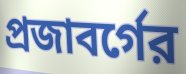
প্রজাবর্গের